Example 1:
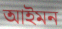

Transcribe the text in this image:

আইমন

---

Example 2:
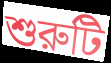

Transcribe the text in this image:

শুরুটি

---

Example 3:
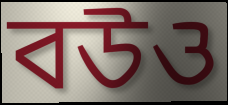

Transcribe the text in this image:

বউও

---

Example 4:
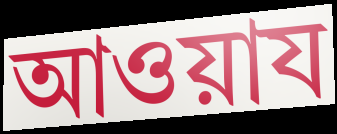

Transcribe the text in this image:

আওয়ায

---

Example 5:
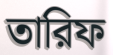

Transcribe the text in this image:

তারিফ